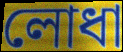
লোধা